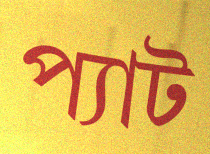
প্যাট